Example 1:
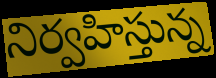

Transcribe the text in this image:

నిర్వహిస్తున్న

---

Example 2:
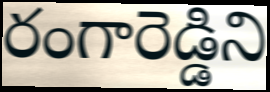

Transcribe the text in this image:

రంగారెడ్డిని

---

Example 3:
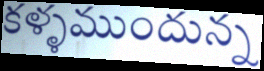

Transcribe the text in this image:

కళ్ళముందున్న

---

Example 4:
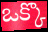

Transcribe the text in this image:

ఒక్కొ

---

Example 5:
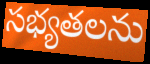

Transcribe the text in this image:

సభ్యతలను